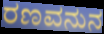
ರಣವನುನ